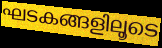
ഘടകങ്ങളിലൂടെ